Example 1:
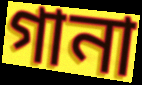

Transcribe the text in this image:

গানা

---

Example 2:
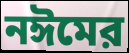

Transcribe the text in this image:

নঈমের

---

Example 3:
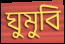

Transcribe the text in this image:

ঘুমুবি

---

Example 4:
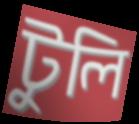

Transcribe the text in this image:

টুলি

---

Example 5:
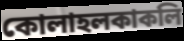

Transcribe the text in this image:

কোলাহলকাকলি